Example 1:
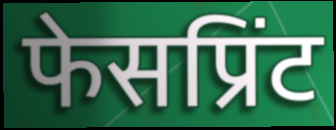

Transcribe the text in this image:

फेसप्रिंट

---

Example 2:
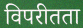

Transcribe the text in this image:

विपरीतता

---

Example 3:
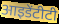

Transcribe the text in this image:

आइडेंटीटी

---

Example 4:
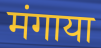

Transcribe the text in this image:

मंगाया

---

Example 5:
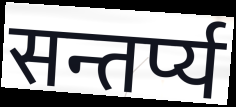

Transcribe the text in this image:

सन्तर्प्य